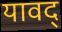
यावद्